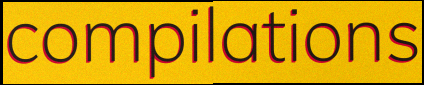
compilations